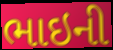
ભાઇની